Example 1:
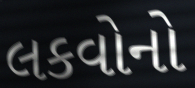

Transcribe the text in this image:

લકવોનો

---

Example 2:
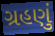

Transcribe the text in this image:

ગ્રહણું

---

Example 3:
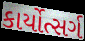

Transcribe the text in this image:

કાર્યોત્સર્ગ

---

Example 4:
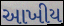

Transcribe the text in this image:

આખીય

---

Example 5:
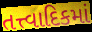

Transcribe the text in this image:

તત્ત્વાદિકમાં